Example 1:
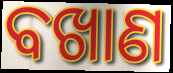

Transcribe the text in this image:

ବଖାଣ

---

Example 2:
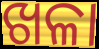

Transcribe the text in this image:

ଖଳା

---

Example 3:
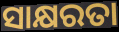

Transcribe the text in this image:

ସାକ୍ଷରତା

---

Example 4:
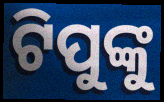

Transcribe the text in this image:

ଟିପୁଙ୍କୁ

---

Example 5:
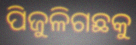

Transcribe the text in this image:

ପିଜୁଳିଗଛକୁ